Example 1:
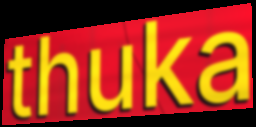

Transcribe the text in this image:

thuka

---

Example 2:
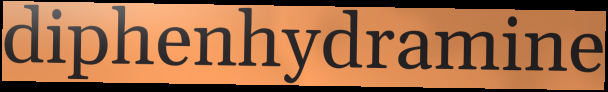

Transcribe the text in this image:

diphenhydramine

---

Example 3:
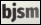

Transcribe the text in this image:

bjsm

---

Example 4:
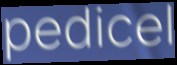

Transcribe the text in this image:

pedicel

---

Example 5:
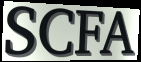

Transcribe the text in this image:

SCFA